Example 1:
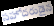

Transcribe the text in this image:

సహోదరుడైన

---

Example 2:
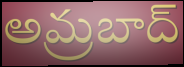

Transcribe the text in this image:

అమ్రబాద్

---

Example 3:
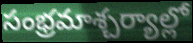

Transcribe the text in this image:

సంభ్రమాశ్చర్యాల్లో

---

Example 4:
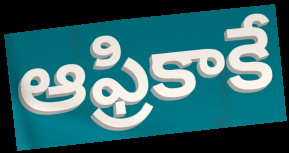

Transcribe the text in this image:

ఆఫ్రికాకే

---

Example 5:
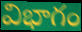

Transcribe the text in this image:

విభాగం